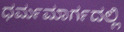
ಧರ್ಮಮಾರ್ಗದಲ್ಲಿ